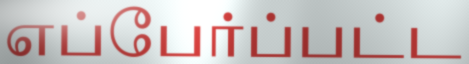
எப்பேர்ப்பட்ட